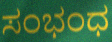
ಸಂಭಂಧ